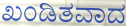
ಖಂಡಿತವಾದ